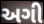
અગી